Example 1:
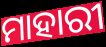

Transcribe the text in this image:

ମାହାରୀ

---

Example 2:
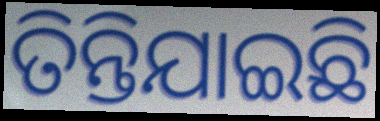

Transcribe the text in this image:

ତିନ୍ତିଯାଇଛି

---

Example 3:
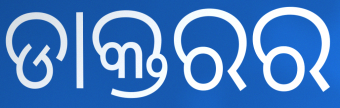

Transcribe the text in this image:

ଡାକ୍ତରର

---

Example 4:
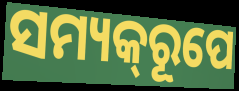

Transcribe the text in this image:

ସମ୍ୟକ୍‌ରୂପେ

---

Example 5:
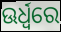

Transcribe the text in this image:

ଊର୍ଧ୍ୱରେ